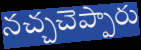
నచ్చచెప్పారు